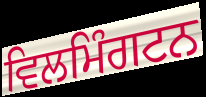
ਵਿਲਮਿੰਗਟਨ